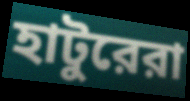
হাটুরেরা